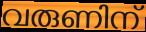
വരുണിന്